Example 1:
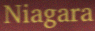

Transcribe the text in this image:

Niagara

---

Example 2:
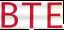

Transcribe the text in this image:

BTE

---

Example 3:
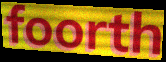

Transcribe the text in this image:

foorth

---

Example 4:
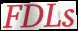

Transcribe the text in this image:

FDLs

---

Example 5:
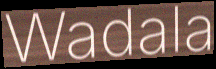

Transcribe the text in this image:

Wadala